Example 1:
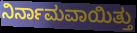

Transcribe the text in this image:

ನಿರ್ನಾಮವಾಯಿತ್ತು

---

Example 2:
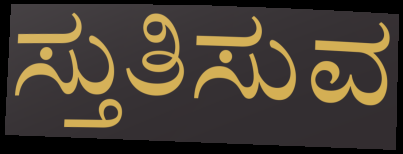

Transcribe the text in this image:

ಸ್ತುತಿಸುವ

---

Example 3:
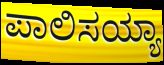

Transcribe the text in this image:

ಪಾಲಿಸಯ್ಯಾ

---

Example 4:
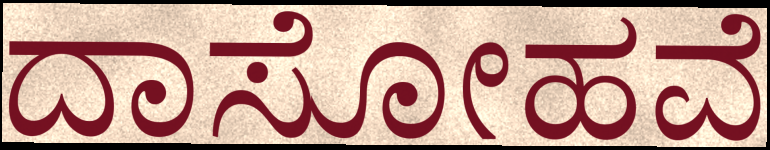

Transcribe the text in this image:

ದಾಸೋಹವೆ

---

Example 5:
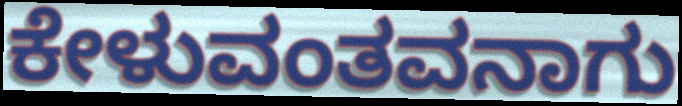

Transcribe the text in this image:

ಕೇಳುವಂತವನಾಗು